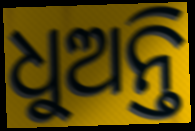
ଧୁଅନ୍ତି